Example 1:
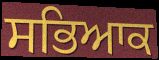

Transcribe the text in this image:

ਸਭਿਆਕ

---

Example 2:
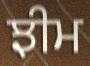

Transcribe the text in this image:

ਝੀਮ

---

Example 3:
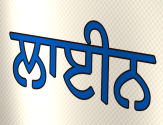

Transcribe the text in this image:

ਲਾਈਨ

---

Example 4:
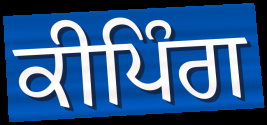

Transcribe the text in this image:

ਕੀਪਿੰਗ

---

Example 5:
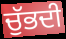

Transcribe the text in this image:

ਚੁੱਭਦੀ